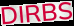
DIRBS